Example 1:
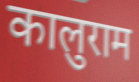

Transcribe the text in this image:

कालुराम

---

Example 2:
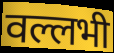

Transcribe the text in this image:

वल्लभी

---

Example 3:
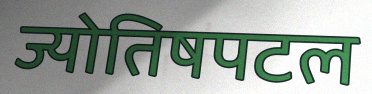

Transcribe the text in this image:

ज्योतिषपटल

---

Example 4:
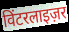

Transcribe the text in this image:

विंटरलाइज़र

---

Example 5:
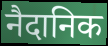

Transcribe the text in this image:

नैदानिक